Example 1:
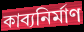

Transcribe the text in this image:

কাব্যনির্মাণ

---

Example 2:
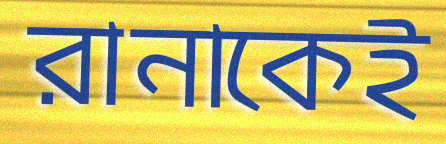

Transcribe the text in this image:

রানাকেই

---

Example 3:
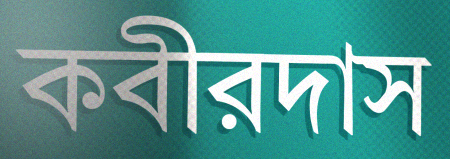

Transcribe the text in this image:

কবীরদাস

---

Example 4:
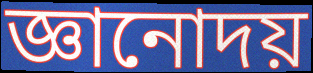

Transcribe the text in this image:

জ্ঞানোদয়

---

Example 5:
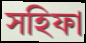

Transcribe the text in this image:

সহিফা